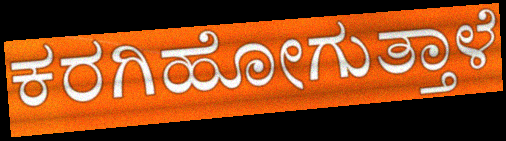
ಕರಗಿಹೋಗುತ್ತಾಳೆ